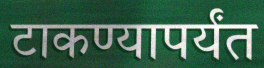
टाकण्यापर्यंत